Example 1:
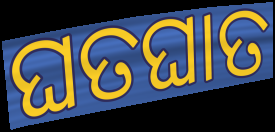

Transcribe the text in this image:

ଘତଘାତ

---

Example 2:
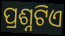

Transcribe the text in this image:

ପ୍ରଶ୍ନଟିଏ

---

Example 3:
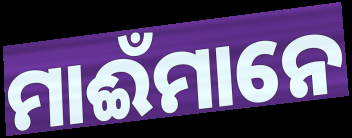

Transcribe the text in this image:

ମାଈଁମାନେ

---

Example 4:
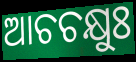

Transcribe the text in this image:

ଆଚଚକ୍ଷୁଃ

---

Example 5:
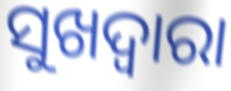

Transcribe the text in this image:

ସୁଖଦ୍ଵାରା